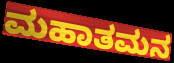
ಮಹಾತಮನ